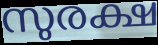
സുരക്ഷ